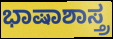
ಭಾಷಾಶಾಸ್ತ್ರ